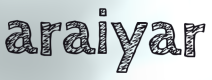
araiyar